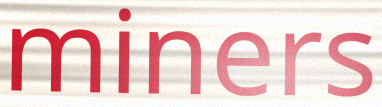
miners